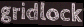
gridlock